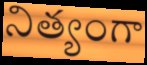
నిత్యంగా